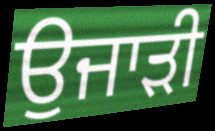
ਉਜਾੜੀ